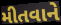
મીતવાને